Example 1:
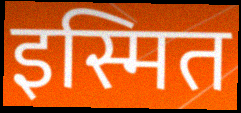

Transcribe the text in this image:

इस्मित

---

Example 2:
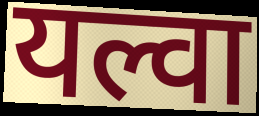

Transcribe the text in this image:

यल्वा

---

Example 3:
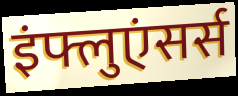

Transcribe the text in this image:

इंफ्लुएंसर्स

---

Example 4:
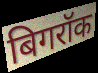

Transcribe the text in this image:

बिगरॉक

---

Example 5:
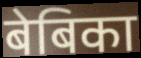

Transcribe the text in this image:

बेबिका